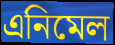
এনিমেল